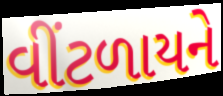
વીંટળાયને